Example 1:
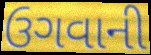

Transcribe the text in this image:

ઉગવાની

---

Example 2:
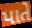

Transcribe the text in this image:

પાતે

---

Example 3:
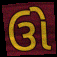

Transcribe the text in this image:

ઉો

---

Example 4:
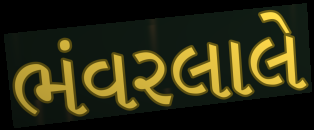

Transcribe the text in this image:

ભંવરલાલે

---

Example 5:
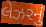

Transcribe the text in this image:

લેઝરનું